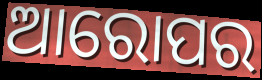
ଆରୋପର